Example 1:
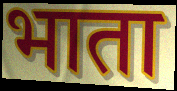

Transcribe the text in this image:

भाता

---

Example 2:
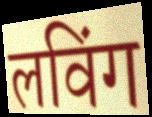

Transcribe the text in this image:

लविंग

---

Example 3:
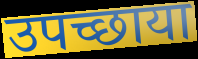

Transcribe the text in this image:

उपच्छाया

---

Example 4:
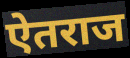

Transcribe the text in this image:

ऐतराज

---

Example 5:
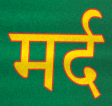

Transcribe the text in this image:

मर्द